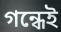
গন্ধেই